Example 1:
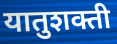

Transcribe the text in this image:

यातुशक्ती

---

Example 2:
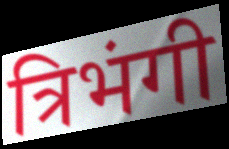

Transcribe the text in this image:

त्रिभंगी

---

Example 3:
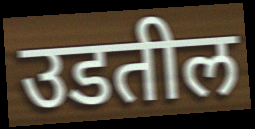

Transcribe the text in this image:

उडतील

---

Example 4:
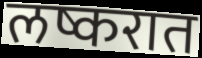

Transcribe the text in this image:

लष्करात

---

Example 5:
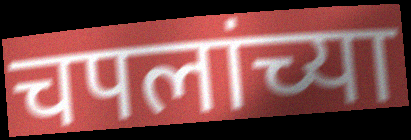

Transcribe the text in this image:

चपलांच्या